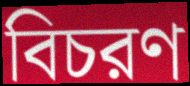
বিচরণ